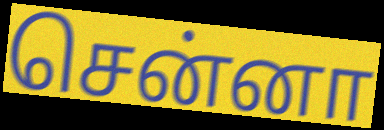
சென்னா